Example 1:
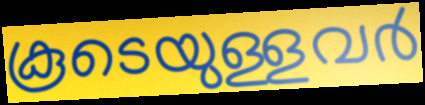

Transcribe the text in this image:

കൂടെയുള്ളവർ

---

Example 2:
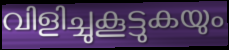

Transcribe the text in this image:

വിളിച്ചുകൂട്ടുകയും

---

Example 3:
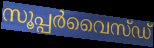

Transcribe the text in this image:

സൂപ്പർവൈസ്ഡ്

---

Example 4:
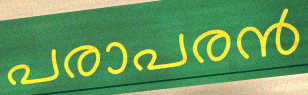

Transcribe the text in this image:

പരാപരൻ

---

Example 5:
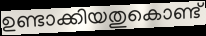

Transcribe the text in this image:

ഉണ്ടാക്കിയതുകൊണ്ട്